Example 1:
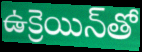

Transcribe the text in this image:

ఉక్రెయిన్‌తో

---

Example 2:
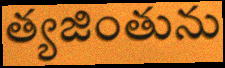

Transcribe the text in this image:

త్యజింతును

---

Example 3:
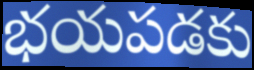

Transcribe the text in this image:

భయపడకు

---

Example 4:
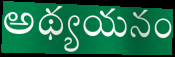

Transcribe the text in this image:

అథ్యయనం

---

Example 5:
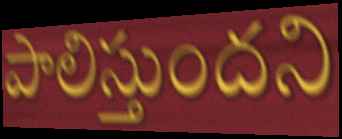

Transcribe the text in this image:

పాలిస్తుందని